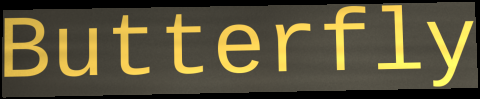
Butterfly